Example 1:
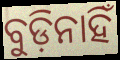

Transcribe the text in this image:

ବୁଡ଼ିନାହିଁ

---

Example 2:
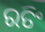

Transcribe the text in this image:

ରତିଂ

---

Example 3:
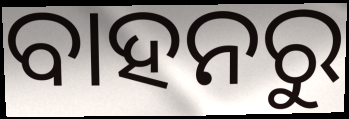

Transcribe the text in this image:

ବାହନରୁ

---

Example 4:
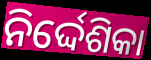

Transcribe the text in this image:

ନିର୍ଦ୍ଦେଶିକା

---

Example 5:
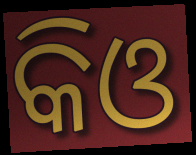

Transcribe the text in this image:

କିଓ